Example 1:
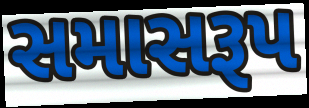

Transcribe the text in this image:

સમાસરૂપ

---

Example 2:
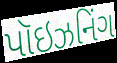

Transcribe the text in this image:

પૉઇઝનિંગ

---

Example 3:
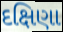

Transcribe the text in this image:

દક્ષિણા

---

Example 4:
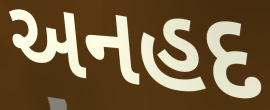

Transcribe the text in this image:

અનહદ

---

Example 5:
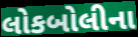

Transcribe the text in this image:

લોકબોલીના